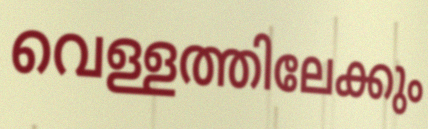
വെള്ളത്തിലേക്കും